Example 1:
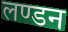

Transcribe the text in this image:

लण्डन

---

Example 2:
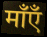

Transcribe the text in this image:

माँएँ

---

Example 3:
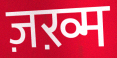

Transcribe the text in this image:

ज़ख़्म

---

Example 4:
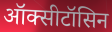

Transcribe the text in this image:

ऑक्सीटॉसिन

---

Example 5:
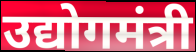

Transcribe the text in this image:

उद्योगमंत्री